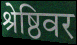
श्रेष्ठिवर